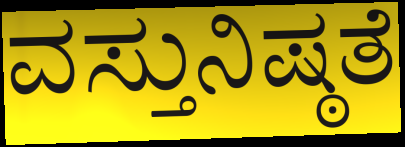
ವಸ್ತುನಿಷ್ಠತೆ